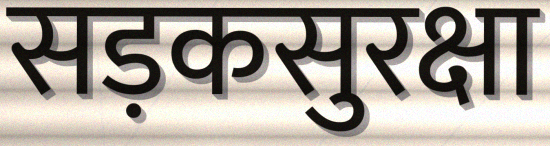
सड़कसुरक्षा